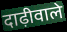
दाढ़ीवाले